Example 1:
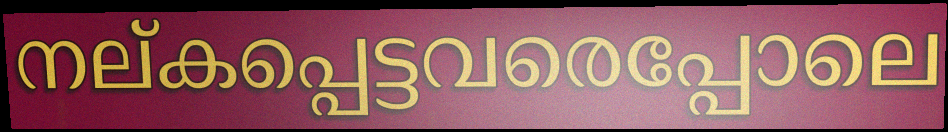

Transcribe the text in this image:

നല്കപ്പെട്ടവരെപ്പോലെ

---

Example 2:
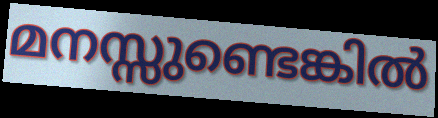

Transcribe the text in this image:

മനസ്സുണ്ടെങ്കിൽ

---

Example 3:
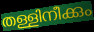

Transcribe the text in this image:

തള്ളിനീക്കും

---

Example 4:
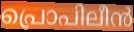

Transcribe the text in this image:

പ്രൊപിലീൻ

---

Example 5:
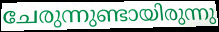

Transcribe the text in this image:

ചേരുന്നുണ്ടായിരുന്നു